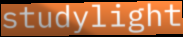
studylight